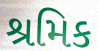
શ્રમિક